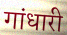
गांधारी